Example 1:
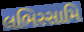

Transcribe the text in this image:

લભિસ્સામિ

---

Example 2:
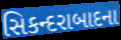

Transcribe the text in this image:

સિકન્દરાબાદના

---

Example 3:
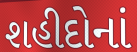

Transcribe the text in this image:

શહીદોનાં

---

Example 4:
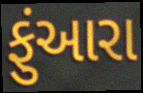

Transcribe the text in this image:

ફુંઆરા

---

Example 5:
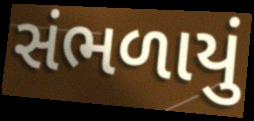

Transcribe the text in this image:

સંભળાયું